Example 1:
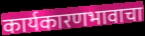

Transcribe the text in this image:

कार्यकारणभावाचा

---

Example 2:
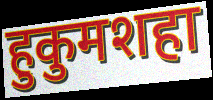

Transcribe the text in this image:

हुकुमशहा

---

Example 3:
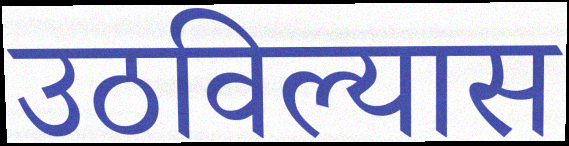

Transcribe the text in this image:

उठविल्यास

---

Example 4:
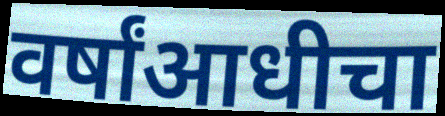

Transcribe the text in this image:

वर्षांआधीचा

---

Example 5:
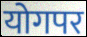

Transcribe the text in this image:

योगपर